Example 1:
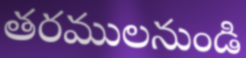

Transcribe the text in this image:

తరములనుండి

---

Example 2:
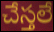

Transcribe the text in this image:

చేస్తలే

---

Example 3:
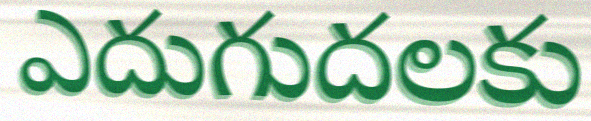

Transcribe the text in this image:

ఎదుగుదలకు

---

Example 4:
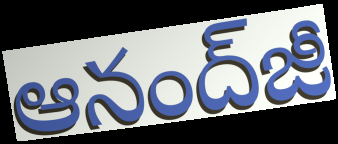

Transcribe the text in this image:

ఆనంద్‌జీ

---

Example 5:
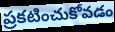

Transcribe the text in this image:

ప్రకటించుకోవడం